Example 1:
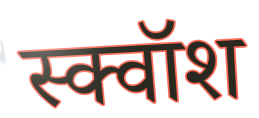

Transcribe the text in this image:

स्क्वॉश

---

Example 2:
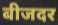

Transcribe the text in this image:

बीजदर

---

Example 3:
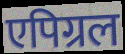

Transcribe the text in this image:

एपिग्रल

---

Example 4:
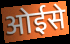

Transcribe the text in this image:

ओईसे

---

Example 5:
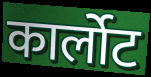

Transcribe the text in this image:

कार्लोट